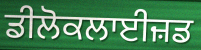
ਡੀਲੋਕਲਾਈਜ਼ਡ